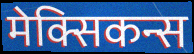
मेक्सिकन्स